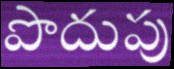
పొదుపు